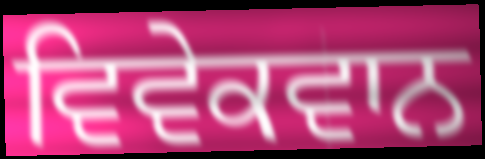
ਵਿਵੇਕਵਾਨ